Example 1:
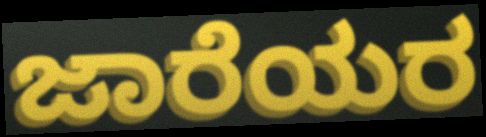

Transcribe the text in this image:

ಜಾರೆಯರ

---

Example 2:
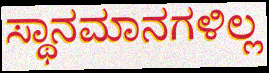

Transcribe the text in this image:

ಸ್ಥಾನಮಾನಗಳಿಲ್ಲ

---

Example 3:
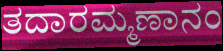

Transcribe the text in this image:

ತದಾರಮ್ಮಣಾನಂ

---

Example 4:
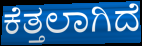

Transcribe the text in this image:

ಕೆತ್ತಲಾಗಿದೆ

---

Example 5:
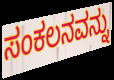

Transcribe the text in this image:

ಸಂಕಲನವನ್ನು